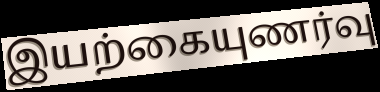
இயற்கையுணர்வு